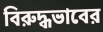
বিরুদ্ধভাবের